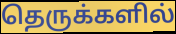
தெருக்களில்